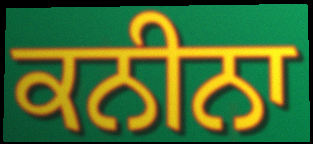
ਕਨੀਨਾ